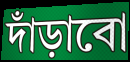
দাঁড়াবো